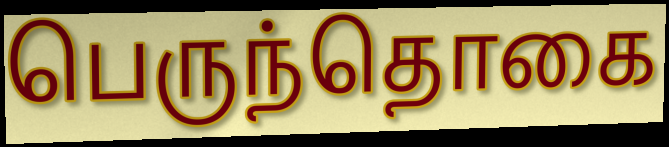
பெருந்தொகை